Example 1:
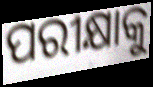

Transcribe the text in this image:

ପରୀକ୍ଷାକୁ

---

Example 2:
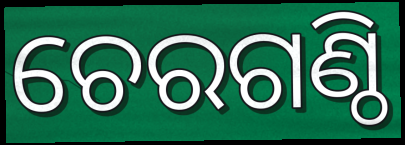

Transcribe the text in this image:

ଚେରଗଣ୍ଠି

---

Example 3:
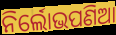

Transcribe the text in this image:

ନିର୍ଲୋଭପଣିଆ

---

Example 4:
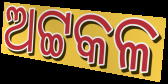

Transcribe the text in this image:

ଅଟ୍ଟକଳ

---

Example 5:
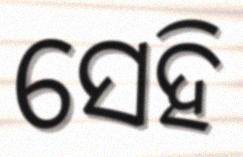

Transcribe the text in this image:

ସେହି